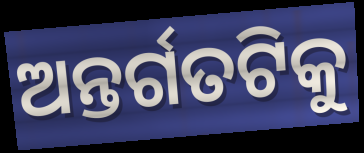
ଅନ୍ତର୍ଗତଟିକୁ